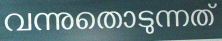
വന്നുതൊടുന്നത്